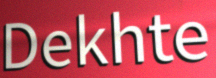
Dekhte